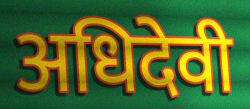
अधिदेवी